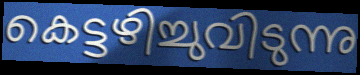
കെട്ടഴിച്ചുവിടുന്നു